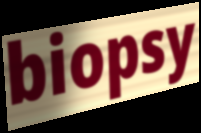
biopsy